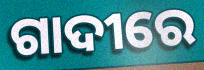
ଗାଦୀରେ